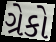
ગ્રેકો